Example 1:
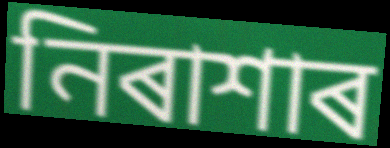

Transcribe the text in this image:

নিৰাশাৰ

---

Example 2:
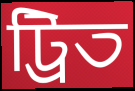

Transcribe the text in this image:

ট্ৰিত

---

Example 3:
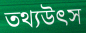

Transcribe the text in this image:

তথ্যউৎস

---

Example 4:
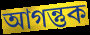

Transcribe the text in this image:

আগন্তুক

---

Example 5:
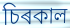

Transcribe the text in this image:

চিৰকাল